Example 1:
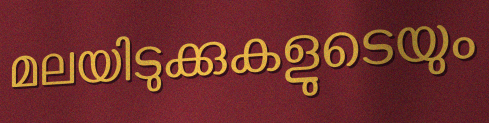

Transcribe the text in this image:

മലയിടുക്കുകളുടെയും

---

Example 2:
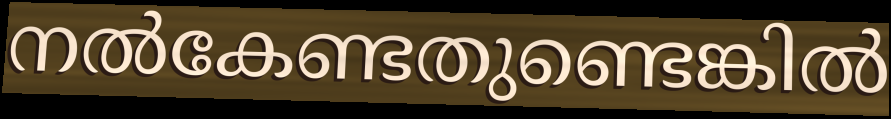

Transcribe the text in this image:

നൽകേണ്ടതുണ്ടെങ്കിൽ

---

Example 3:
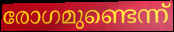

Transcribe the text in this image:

രോഗമുണ്ടെന്ന്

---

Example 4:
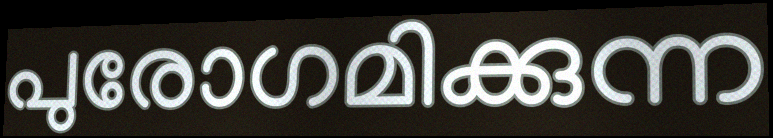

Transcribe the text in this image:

പുരോഗമിക്കുന്ന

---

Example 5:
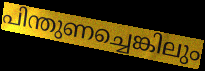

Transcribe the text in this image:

പിന്തുണച്ചെങ്കിലും